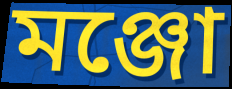
মঞ্জো